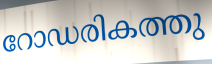
റോഡരികത്തു